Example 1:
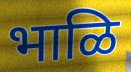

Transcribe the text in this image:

भाळि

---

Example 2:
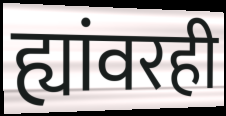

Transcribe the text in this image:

ह्यांवरही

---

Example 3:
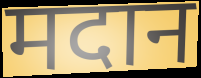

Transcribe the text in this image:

मदान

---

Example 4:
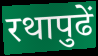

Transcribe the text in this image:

रथापुढें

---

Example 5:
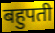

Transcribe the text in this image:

बहुपती